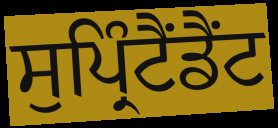
ਸੁਪ੍ਰਿੰਟੈਂਡੈਂਟ